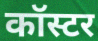
कॉस्टर